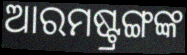
ଆରମଷ୍ଟ୍ରଙ୍ଗଙ୍କ